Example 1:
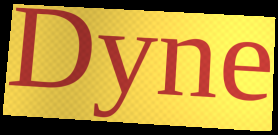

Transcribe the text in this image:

Dyne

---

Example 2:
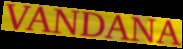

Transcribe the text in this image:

VANDANA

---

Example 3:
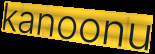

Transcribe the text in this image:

kanoonu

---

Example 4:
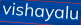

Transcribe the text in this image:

vishayalu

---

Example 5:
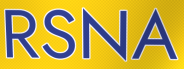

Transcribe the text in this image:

RSNA